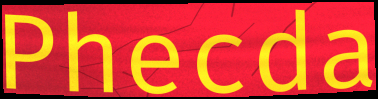
Phecda